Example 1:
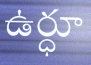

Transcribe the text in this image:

ఉర్ధూ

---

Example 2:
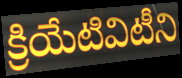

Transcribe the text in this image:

క్రియేటివిటీని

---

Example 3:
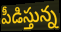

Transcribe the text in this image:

పీడిస్తున్న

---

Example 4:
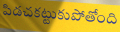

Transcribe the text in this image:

పిడచకట్టుకుపోతోంది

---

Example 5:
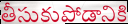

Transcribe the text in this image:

తీసుకుపోడానికి